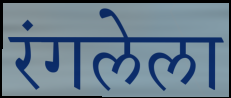
रंगलेला